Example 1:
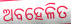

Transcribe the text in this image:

ଅବହେଳିତ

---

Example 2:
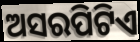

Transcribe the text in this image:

ଅସରପିଟିଏ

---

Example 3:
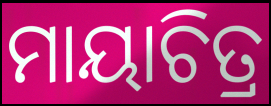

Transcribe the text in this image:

ମାୟାଚିତ୍ର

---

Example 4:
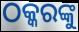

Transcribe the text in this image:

ଠକ୍କରଙ୍କୁ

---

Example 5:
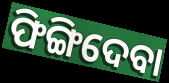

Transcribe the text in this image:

ଫିଙ୍ଗିଦେବା